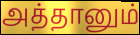
அத்தானும்